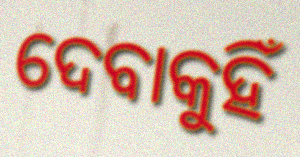
ଦେବାକୁହିଁ